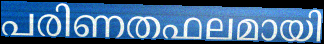
പരിണതഫലമായി